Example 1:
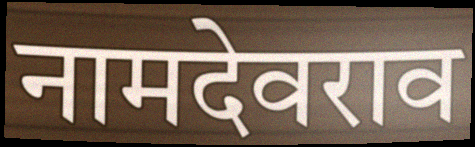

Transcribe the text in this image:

नामदेवराव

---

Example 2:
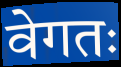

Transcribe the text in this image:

वेगतः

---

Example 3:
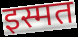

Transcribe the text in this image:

इस्मत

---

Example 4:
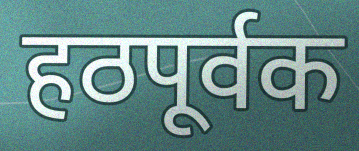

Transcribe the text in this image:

हठपूर्वक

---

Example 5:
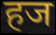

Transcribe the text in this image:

हज